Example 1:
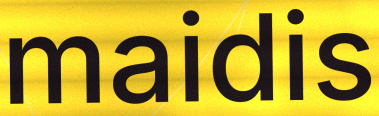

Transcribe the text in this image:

maidis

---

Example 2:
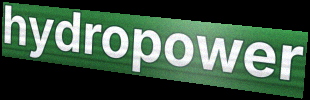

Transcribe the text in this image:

hydropower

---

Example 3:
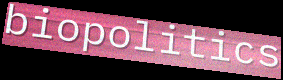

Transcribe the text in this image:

biopolitics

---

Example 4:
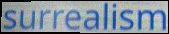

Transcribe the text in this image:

surrealism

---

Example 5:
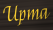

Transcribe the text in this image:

Upma